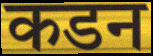
कडन